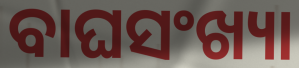
ବାଘସଂଖ୍ୟା